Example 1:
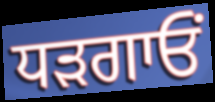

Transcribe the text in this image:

ਧੜਗਾਓਂ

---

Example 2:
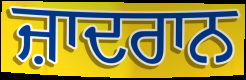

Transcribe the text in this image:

ਜ਼ਾਦਰਾਨ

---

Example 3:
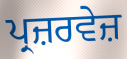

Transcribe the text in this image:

ਪ੍ਰਜ਼ਰਵੇਜ਼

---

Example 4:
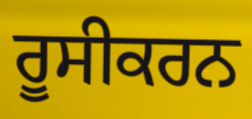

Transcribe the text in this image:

ਰੂਸੀਕਰਨ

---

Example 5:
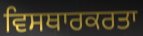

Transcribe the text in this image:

ਵਿਸਥਾਰਕਰਤਾ